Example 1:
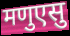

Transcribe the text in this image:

मणुएसु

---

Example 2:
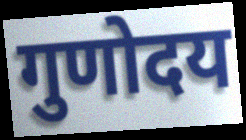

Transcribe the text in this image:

गुणोदय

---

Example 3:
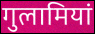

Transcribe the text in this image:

गुलामियां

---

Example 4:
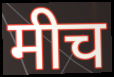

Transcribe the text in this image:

मीच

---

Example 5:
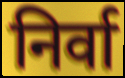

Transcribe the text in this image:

निर्वा